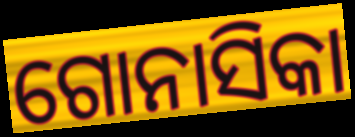
ଗୋନାସିକା